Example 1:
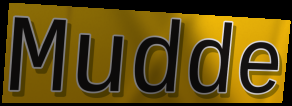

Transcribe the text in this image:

Mudde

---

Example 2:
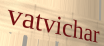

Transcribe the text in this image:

vatvichar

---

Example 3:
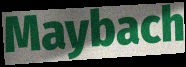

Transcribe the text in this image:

Maybach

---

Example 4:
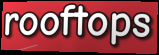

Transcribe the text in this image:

rooftops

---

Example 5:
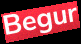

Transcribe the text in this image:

Begur